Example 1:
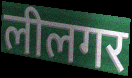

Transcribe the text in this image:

लीलगर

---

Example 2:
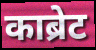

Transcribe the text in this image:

काब्रेट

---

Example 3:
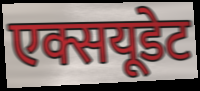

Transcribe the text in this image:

एक्सयूडेट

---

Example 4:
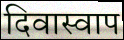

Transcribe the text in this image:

दिवास्वाप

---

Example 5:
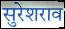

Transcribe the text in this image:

सुरेशराव